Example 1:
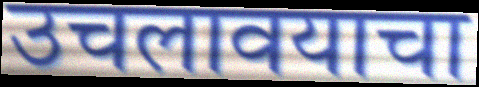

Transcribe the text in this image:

उचलावयाचा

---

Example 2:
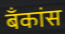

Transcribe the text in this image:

बँकांस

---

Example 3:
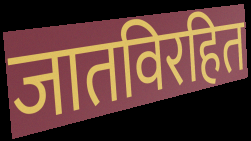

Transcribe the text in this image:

जातविरहित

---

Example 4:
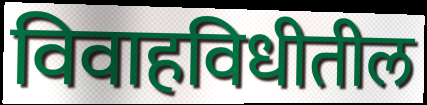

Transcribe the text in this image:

विवाहविधीतील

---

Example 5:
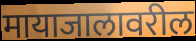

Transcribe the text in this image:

मायाजालावरील